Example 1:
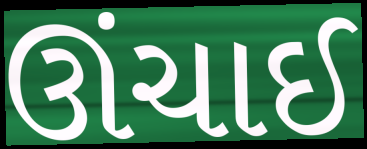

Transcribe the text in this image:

ઊંચાઈ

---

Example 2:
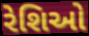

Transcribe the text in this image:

રેશિઓ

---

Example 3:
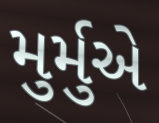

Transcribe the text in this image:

મુર્મુએ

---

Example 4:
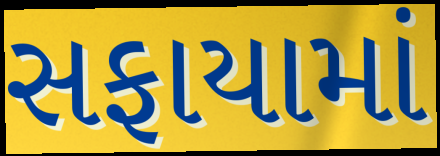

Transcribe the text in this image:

સફાયામાં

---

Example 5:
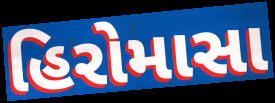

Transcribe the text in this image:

હિરોમાસા